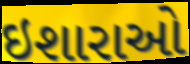
ઇશારાઓ